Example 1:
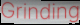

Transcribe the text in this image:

Grinding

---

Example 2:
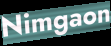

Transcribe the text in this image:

Nimgaon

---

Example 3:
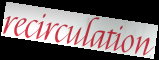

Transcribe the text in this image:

recirculation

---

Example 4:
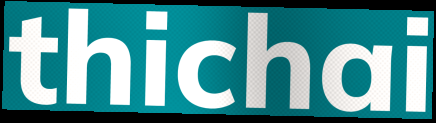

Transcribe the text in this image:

thichai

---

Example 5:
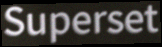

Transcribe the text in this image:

Superset